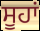
ਸੂਹਾਂ